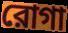
রোগা